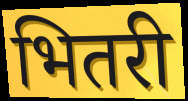
भितरी